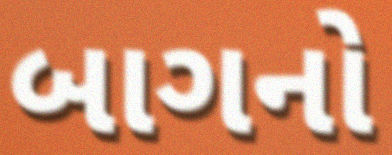
બાગનો